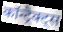
कॉन्‍ट्रैक्‍ट्स